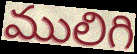
ములిగి